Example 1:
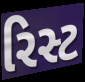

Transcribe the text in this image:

રિસ્ટ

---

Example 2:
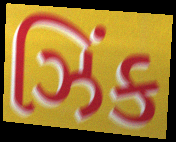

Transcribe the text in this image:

ઝિંક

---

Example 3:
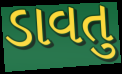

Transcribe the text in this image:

ડાવતુ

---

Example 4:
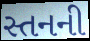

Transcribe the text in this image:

સ્તનની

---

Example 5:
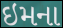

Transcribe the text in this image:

ઇમના